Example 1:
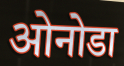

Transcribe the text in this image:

ओनोडा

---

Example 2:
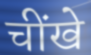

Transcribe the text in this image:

चींखे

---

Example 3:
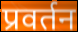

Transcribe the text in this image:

प्रवर्तन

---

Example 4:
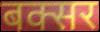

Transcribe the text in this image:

बक्सर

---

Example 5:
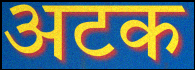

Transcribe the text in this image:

अटक